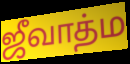
ஜீவாத்ம